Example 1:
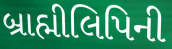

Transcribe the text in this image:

બ્રાહ્મીલિપિની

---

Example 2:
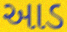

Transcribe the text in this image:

આડ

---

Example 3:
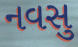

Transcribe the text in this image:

નવસુ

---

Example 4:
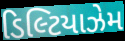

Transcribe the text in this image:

ડિલ્ટિયાઝેમ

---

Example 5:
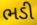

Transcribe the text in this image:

ભડી